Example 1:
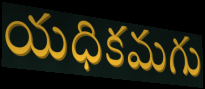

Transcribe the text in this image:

యధికమగు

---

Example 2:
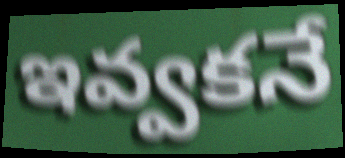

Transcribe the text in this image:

ఇవ్వకనే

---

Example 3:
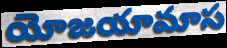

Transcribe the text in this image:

యోజయామాస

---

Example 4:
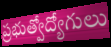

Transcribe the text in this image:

ప్రభుత్వోద్యోగులు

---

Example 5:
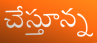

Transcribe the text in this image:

చేస్తూన్న